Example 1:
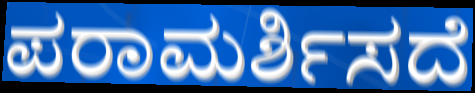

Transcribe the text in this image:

ಪರಾಮರ್ಶಿಸದೆ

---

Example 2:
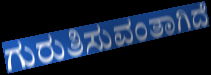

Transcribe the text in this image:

ಗುರುತಿಸುವಂತಾಗಿದೆ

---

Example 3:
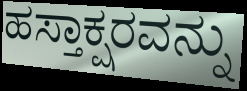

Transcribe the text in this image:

ಹಸ್ತಾಕ್ಷರವನ್ನು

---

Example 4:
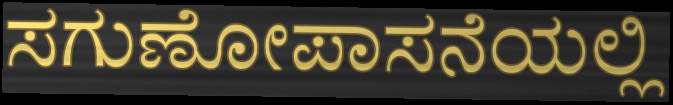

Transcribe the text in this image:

ಸಗುಣೋಪಾಸನೆಯಲ್ಲಿ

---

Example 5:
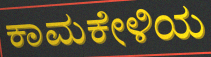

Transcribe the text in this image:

ಕಾಮಕೇಳಿಯ